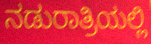
ನಡುರಾತ್ರಿಯಲ್ಲಿ